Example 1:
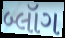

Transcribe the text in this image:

બ્લૉગ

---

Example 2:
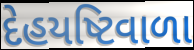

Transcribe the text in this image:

દેહયષ્ટિવાળા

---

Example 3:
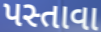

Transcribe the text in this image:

પસ્તાવા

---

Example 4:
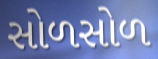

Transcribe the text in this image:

સોળસોળ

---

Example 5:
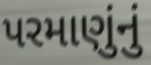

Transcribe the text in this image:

પરમાણુંનું